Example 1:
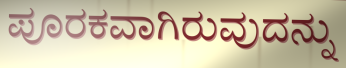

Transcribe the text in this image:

ಪೂರಕವಾಗಿರುವುದನ್ನು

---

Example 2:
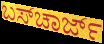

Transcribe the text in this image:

ಬಸ್‌ಚಾರ್ಜ್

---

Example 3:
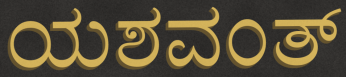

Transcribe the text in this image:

ಯಶವಂತ್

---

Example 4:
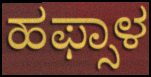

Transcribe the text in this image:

ಹಫ್ಸಾಳ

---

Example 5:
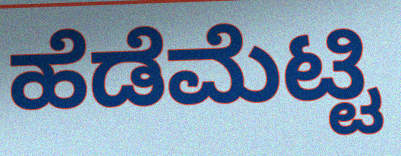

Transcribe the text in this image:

ಹೆಡೆಮೆಟ್ಟಿ